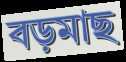
বড়মাছ